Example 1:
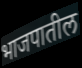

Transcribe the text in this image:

भाजपातील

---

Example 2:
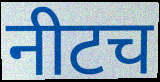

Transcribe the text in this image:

नीटच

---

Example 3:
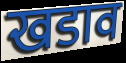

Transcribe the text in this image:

खडाव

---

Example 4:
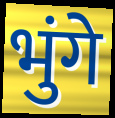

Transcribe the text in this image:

भुंगे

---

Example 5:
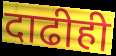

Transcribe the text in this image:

दाढीही